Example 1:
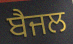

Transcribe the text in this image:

ਬੈਜਲ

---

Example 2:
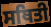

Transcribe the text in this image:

ਸਥਿਤੀ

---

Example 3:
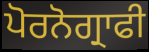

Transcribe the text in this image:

ਪੋਰਨੋਗ੍ਰਾਫੀ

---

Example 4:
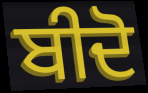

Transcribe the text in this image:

ਬੀਦੋ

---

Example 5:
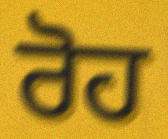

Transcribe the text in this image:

ਰੋਹ